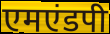
एमएंडपी